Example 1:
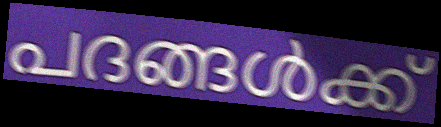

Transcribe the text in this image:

പദങ്ങൾക്ക്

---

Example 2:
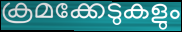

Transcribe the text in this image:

ക്രമക്കേടുകളും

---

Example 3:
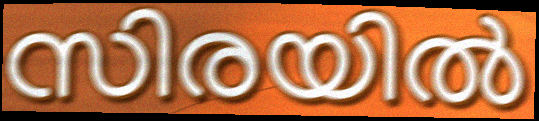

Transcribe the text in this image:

സിരയിൽ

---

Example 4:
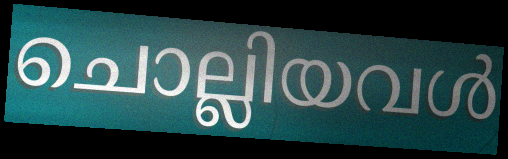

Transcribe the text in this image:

ചൊല്ലിയവൾ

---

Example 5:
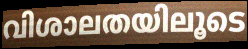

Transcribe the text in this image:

വിശാലതയിലൂടെ